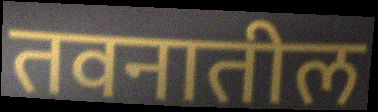
तवनातील